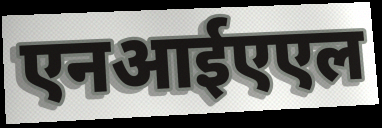
एनआईएएल